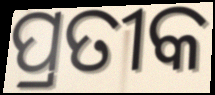
ପ୍ରତୀକ